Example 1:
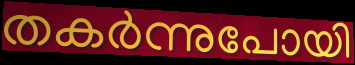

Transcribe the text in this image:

തകർന്നുപോയി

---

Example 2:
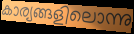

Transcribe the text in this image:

കാര്യങ്ങളിലൊന്നു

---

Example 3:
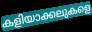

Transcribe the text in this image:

കളിയാക്കലുകളെ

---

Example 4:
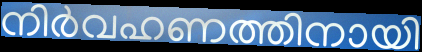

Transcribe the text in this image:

നിർവഹണത്തിനായി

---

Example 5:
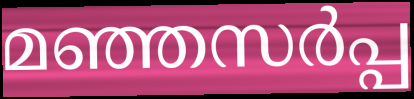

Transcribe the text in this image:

മഞ്ഞസർപ്പ